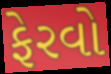
ફેરવો